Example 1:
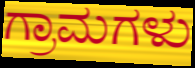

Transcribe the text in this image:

ಗ್ರಾಮಗಳು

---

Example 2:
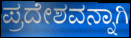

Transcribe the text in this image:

ಪ್ರದೇಶವನ್ನಾಗಿ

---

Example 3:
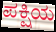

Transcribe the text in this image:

ಪಕ್ಷಿಯ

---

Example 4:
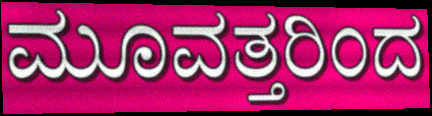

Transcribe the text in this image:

ಮೂವತ್ತರಿಂದ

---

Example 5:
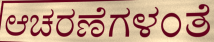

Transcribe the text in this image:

ಆಚರಣೆಗಳಂತೆ